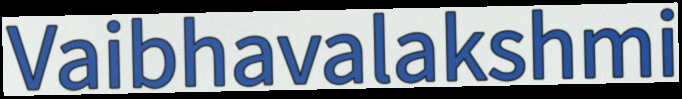
Vaibhavalakshmi